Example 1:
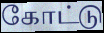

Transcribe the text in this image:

கோட்டு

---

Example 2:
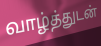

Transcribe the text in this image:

வாழ்த்துடன்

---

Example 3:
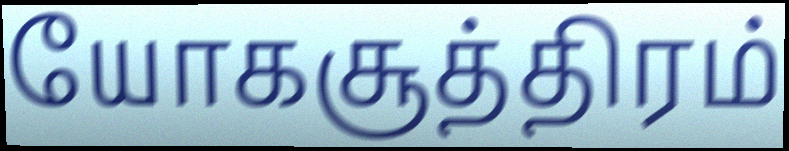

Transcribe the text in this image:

யோகசூத்திரம்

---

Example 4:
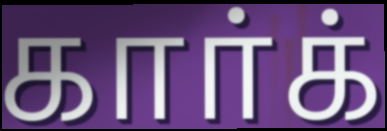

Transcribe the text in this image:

கார்க்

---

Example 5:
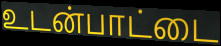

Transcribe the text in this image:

உடன்பாட்டை